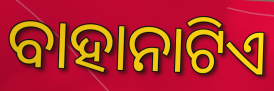
ବାହାନାଟିଏ